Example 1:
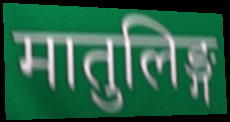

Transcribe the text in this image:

मातुलिङ्ग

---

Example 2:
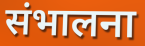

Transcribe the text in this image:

संभालना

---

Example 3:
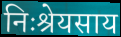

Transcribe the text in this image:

निःश्रेयसाय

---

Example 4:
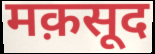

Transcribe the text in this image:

मक़सूद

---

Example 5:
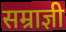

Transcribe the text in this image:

सम्राज्ञी